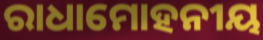
ରାଧାମୋହନୀୟ